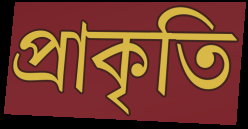
প্ৰাকৃতি